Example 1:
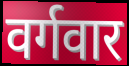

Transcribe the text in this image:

वर्गवार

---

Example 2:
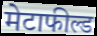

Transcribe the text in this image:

मेटाफील्ड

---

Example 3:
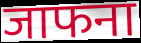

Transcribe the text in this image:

जाफना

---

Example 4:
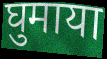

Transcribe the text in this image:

घुमाया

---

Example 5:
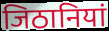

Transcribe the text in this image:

जिठानियां